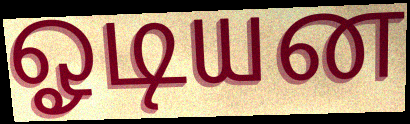
ஓடியன